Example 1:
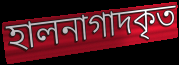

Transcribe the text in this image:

হালনাগাদকৃত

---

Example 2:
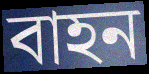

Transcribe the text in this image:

বাহন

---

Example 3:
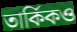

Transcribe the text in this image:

তার্কিকও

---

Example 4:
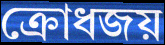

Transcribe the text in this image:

ক্রোধজয়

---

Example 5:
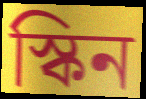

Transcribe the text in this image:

স্কিন